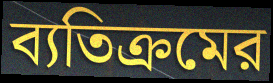
ব্যতিক্রমের